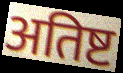
अतिष्ट